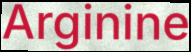
Arginine